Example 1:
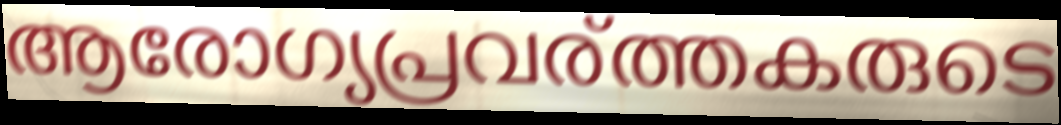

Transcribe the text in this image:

ആരോഗ്യപ്രവര്ത്തകരുടെ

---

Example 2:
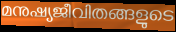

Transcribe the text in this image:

മനുഷ്യജീവിതങ്ങളുടെ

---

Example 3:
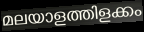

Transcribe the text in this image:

മലയാളത്തിളക്കം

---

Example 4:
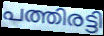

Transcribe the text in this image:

പത്തിരട്ടി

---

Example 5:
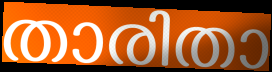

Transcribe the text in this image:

താരിതാ